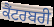
ਕੈਂਟਰਬਰੀ